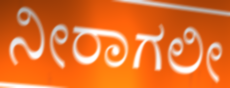
ನೀರಾಗಲೀ